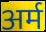
अर्म